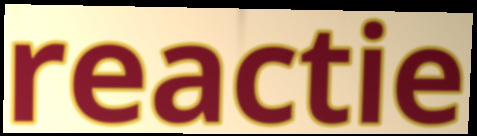
reactie